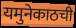
यमुनेकाठची